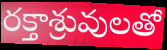
రక్తాశ్రువులతో